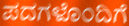
ಪದಗಳೊಂದಿಗೆ